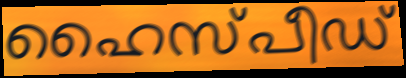
ഹൈസ്പീഡ്